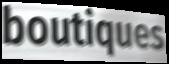
boutiques